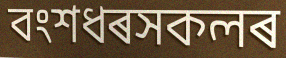
বংশধৰসকলৰ